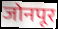
जोनपूर